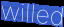
willed